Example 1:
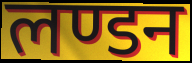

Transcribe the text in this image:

लण्डन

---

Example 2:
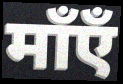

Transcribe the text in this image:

माँएँ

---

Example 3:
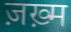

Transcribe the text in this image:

ज़ख़्म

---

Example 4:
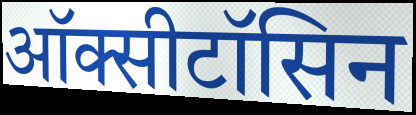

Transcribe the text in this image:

ऑक्सीटॉसिन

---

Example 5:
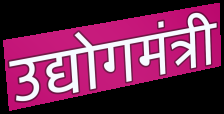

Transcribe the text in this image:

उद्योगमंत्री